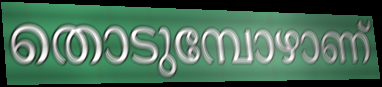
തൊടുമ്പോഴാണ്